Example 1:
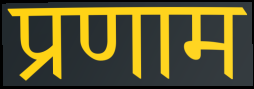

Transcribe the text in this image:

प्रणाम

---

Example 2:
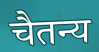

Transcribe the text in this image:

चैतन्य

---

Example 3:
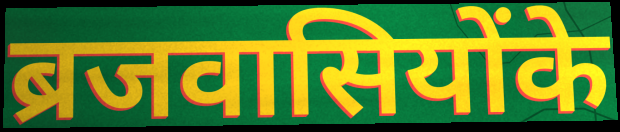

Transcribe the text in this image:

ब्रजवासियोंके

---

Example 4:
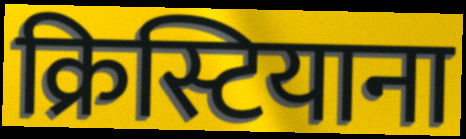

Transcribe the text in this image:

क्रिस्टियाना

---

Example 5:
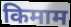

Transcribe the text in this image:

किमाम